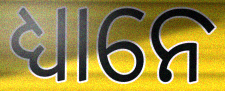
ଧ୍ୟାନେ